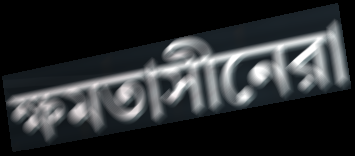
ক্ষমতাসীনেরা